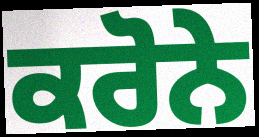
ਕਰੋਨੇ